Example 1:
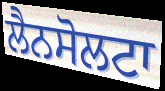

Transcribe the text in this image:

ਲੈਨਸੋਲਟਾ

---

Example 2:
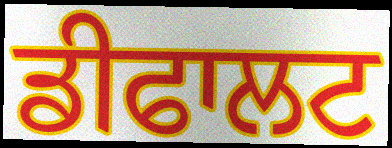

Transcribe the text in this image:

ਡੀਫਾਲਟ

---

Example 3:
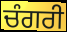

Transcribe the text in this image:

ਚੰਗਰੀ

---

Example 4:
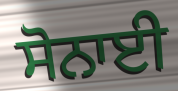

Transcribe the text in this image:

ਸੋਨਾਈ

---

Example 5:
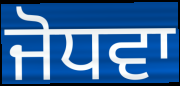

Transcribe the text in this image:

ਜੋਧਵਾ